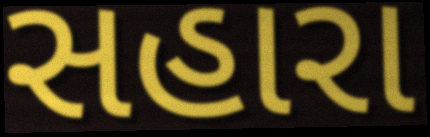
સહારા